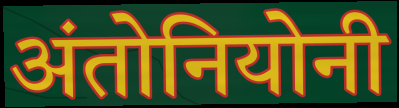
अंतोनियोनी